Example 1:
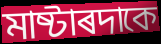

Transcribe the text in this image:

মাষ্টাৰদাকে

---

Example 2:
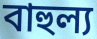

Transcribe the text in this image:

বাহুল্য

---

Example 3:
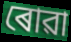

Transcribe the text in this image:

ৰোৱা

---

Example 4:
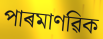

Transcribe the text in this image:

পাৰমাণৱিক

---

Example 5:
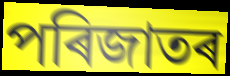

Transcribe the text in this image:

পৰিজাতৰ